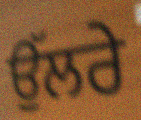
ਉੱਲਰੇ